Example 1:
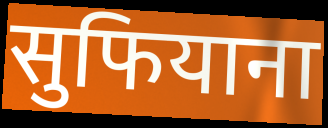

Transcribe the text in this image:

सुफियाना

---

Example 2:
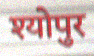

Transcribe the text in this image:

श्‍योपुर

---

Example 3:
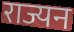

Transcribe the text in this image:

राज्यन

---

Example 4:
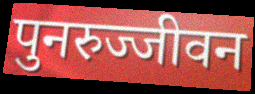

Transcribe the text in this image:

पुनरुज्जीवन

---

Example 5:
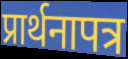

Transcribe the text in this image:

प्रार्थनापत्र